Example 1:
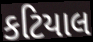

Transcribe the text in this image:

કટિયાલ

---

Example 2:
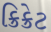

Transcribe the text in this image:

ક્રિક્રેટ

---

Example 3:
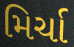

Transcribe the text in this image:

મિર્ચા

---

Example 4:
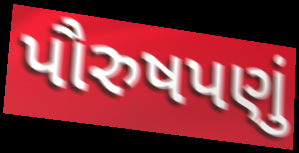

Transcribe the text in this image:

પૌરુષપણું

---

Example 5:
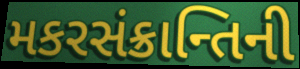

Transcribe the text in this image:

મકરસંક્રાન્તિની